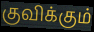
குவிக்கும்